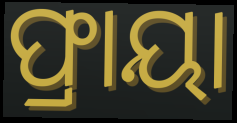
ଫ୍ରାୟା